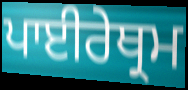
ਪਾਈਰੇਥ੍ਰਮ